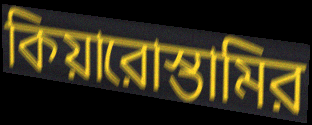
কিয়ারোস্তামির